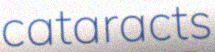
cataracts